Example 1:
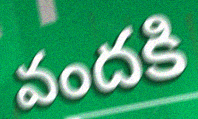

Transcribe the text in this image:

వందకి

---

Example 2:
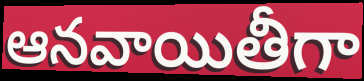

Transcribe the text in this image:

ఆనవాయితీగా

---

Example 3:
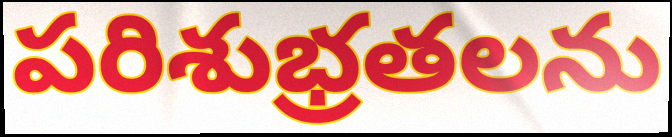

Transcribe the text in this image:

పరిశుభ్రతలను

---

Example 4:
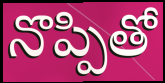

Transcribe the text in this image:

నొప్పితో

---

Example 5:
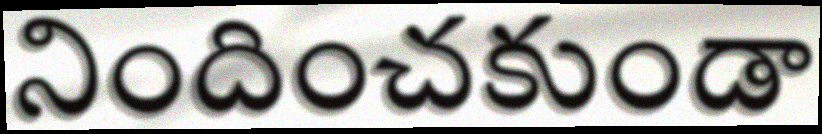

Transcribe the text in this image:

నిందించకుండా